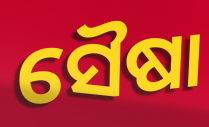
ସୈଷା